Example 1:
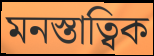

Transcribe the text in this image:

মনস্তাত্বিক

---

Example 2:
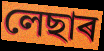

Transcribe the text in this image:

লেছাৰ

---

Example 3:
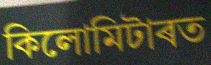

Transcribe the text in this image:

কিলোমিটাৰত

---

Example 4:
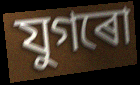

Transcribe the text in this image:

যুগৰো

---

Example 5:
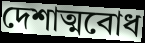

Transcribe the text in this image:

দেশাত্মবোধ